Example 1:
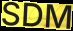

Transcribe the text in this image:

SDM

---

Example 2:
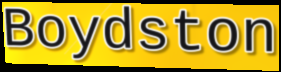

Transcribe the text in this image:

Boydston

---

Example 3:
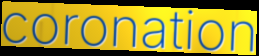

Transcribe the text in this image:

coronation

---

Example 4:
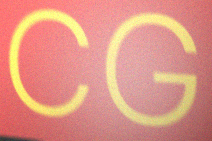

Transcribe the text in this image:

CG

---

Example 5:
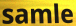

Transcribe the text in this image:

samle